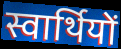
स्वार्थियों